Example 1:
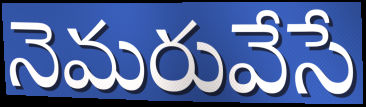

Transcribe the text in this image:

నెమరువేసే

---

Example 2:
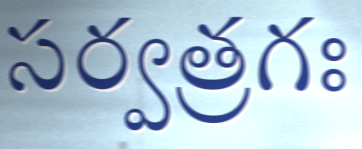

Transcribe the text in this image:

సర్వత్రగః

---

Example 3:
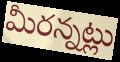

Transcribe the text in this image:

మీరన్నట్లు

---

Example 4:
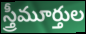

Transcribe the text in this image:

స్త్రీమూర్తుల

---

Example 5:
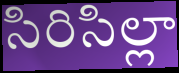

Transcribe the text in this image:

సిరిసిల్లా